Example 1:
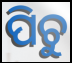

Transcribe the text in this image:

ପିଚୁ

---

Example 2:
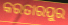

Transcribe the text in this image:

କରତାରପୁର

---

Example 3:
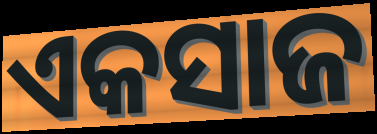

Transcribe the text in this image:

ଏକସାଜ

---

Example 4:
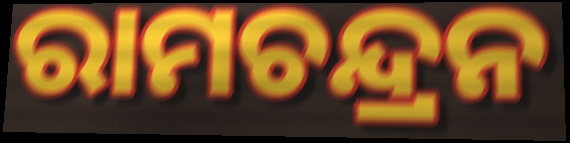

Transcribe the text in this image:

ରାମଚନ୍ଦ୍ରନ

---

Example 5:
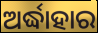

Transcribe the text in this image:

ଅର୍ଦ୍ଧାହାର